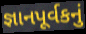
જ્ઞાનપૂર્વકનું